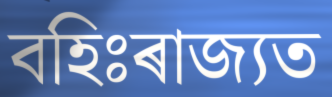
বহিঃৰাজ্যত